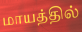
மாயத்தில்